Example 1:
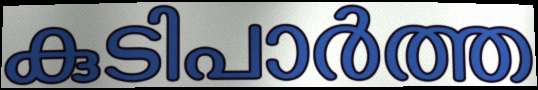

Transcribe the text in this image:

കുടിപാർത്ത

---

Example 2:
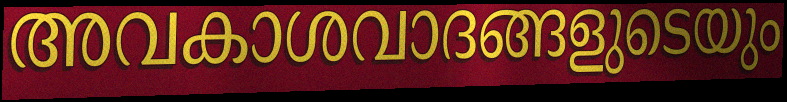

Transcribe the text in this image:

അവകാശവാദങ്ങളുടെയും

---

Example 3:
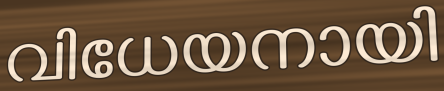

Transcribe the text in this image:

വിധേയനായി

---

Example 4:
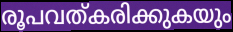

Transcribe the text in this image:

രൂപവത്കരിക്കുകയും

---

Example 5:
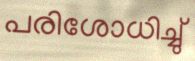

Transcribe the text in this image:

പരിശോധിച്ചു്